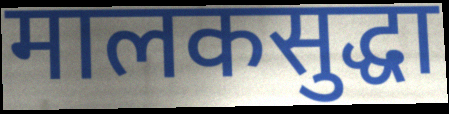
मालकसुद्धा